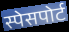
स्पेसपोर्ट